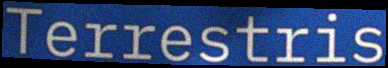
Terrestris